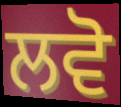
ਲਵੋ